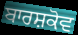
ਬਾਰਸ਼ਕੋਵ